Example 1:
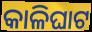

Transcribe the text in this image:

କାଳିଘାଟ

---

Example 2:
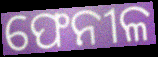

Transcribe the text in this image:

ଫେନୀଳ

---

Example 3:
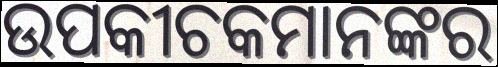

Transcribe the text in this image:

ଉପକୀଚକମାନଙ୍କର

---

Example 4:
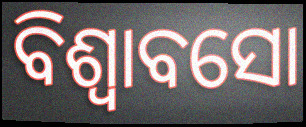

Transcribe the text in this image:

ବିଶ୍ୱାବସୋ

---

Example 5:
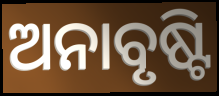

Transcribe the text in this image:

ଅନାବୃଷ୍ଟି